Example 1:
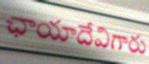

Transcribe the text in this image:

ఛాయాదేవిగారు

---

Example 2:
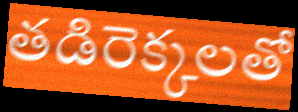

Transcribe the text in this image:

తడిరెక్కలతో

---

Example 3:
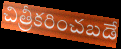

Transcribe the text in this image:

చిత్రీకరించబడే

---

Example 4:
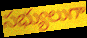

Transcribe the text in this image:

సభ్యులుగా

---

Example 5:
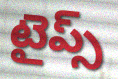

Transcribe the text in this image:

టైప్స్